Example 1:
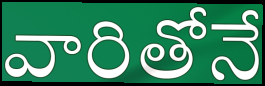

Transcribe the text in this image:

వారితోనే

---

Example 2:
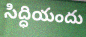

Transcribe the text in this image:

సిద్ధియందు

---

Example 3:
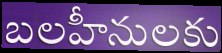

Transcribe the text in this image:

బలహీనులకు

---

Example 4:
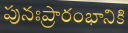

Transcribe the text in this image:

పునఃప్రారంభానికి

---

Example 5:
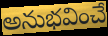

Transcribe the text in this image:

అనుభవించే